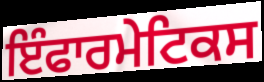
ਇੰਫਾਰਮੇਟਿਕਸ